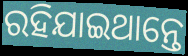
ରହିଯାଇଥାନ୍ତେ